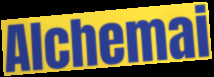
Alchemai